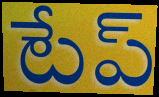
టేప్